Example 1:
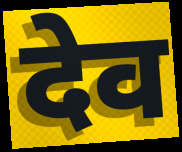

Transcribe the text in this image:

देव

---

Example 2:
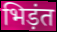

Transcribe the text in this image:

भिड़ंत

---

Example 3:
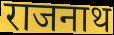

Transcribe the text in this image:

राजनाथ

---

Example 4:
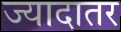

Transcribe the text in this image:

ज्यादातर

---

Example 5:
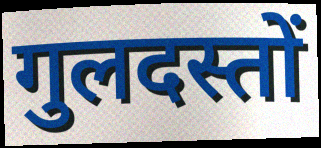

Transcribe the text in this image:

गुलदस्तों